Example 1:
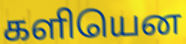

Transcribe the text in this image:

களியென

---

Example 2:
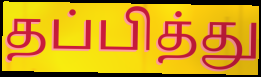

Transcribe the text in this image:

தப்பித்து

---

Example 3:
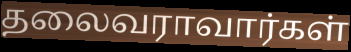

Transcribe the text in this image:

தலைவராவார்கள்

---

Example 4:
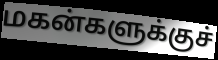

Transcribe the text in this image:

மகன்களுக்குச்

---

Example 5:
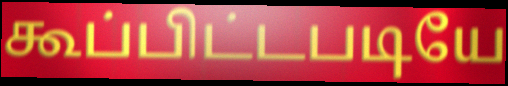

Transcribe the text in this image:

கூப்பிட்டபடியே